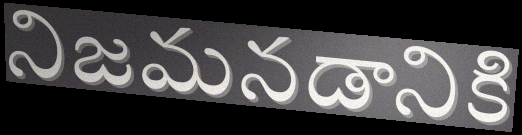
నిజమనడానికి